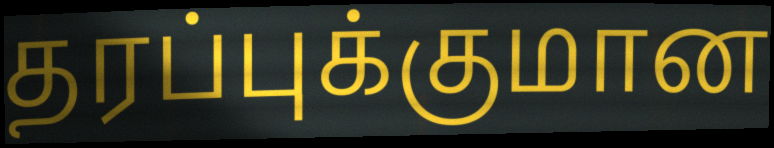
தரப்புக்குமான